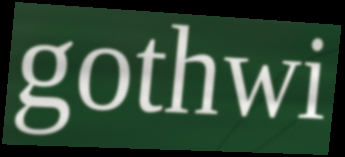
gothwi